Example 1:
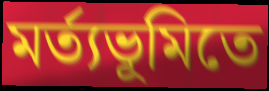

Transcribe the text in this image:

মর্ত্যভূমিতে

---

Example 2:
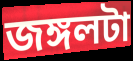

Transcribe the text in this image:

জঙ্গলটা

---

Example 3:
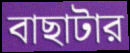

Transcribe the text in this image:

বাছাটার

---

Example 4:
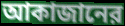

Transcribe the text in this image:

আকাজানের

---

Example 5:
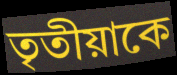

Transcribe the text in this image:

তৃতীয়াকে